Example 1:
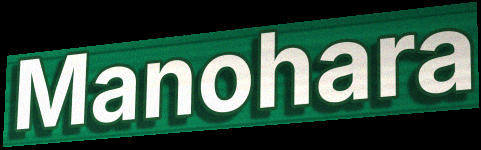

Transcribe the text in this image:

Manohara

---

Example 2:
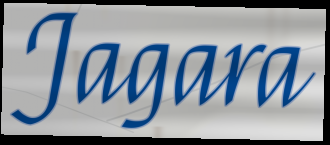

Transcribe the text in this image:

Jagara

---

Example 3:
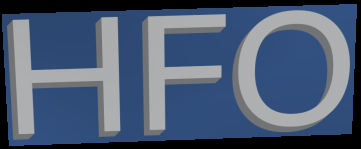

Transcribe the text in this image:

HFO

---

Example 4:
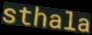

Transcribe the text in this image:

sthala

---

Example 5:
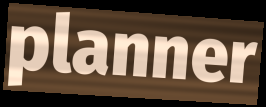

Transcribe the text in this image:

planner